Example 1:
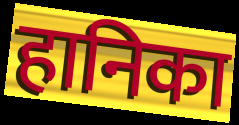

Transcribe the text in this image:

हानिका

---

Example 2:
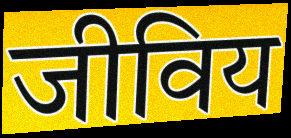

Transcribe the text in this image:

जीविय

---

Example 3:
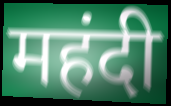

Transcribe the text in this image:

महंदी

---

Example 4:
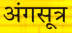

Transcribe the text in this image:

अंगसूत्र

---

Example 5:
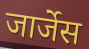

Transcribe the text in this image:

जार्जेस